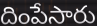
దింపేసారు